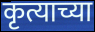
कृत्याच्या